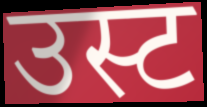
उस्ट